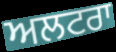
ਅਲਟਰਾ